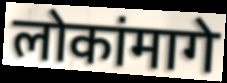
लोकांमागे